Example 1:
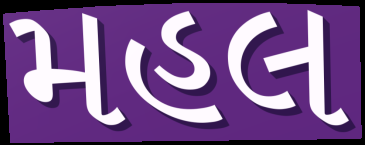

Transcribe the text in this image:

મહલ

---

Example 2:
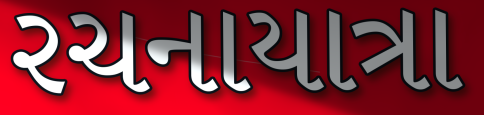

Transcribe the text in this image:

રચનાયાત્રા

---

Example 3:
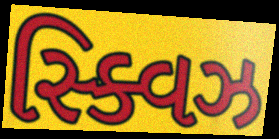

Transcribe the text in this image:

સ્ક્વિઝ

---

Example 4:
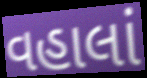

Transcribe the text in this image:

વહાલાં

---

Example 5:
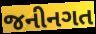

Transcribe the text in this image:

જનીનગત